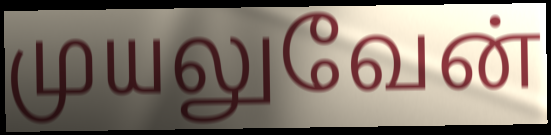
முயலுவேன்